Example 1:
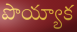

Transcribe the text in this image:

పొయ్యాక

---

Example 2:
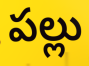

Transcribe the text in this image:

పల్లు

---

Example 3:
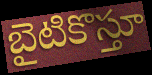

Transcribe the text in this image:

బైటికొస్తూ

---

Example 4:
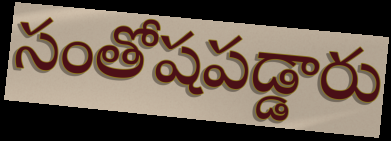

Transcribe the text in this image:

సంతోషపడ్డారు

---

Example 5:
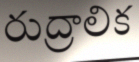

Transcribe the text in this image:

రుద్రాలిక